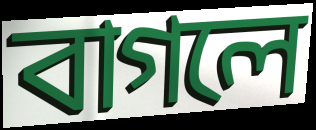
বাগলে